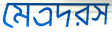
মেত্রদরস